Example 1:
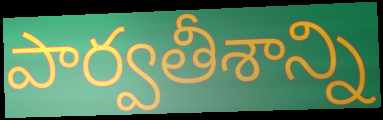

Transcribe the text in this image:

పార్వతీశాన్ని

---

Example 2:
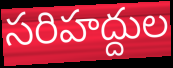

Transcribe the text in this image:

సరిహద్దుల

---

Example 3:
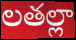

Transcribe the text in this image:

లతల్లా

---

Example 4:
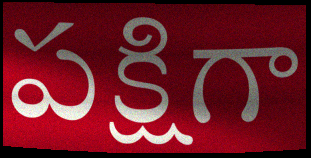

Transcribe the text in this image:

పక్షిగా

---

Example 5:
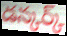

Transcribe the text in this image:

డన్కర్క్